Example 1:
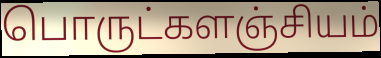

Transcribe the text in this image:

பொருட்களஞ்சியம்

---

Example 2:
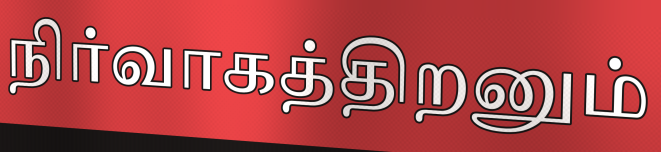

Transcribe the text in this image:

நிர்வாகத்திறனும்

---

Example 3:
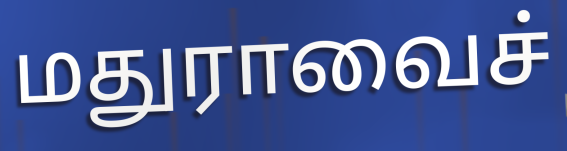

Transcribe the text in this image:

மதுராவைச்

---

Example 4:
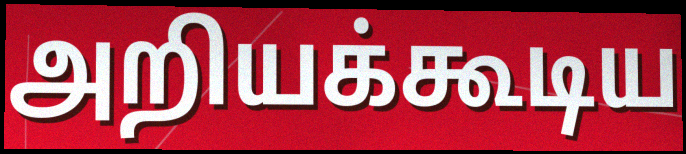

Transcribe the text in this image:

அறியக்கூடிய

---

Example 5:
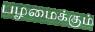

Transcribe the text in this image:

பழமைக்கும்